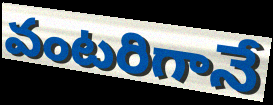
వంటరిగానే